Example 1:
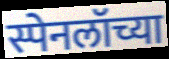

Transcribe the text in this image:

स्पेनलॉच्या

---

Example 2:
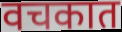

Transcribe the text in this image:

वचकात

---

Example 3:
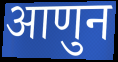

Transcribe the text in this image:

आणुन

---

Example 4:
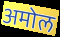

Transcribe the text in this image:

अमोल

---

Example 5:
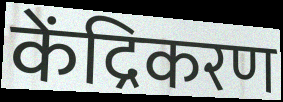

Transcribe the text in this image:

केंद्रिकरण